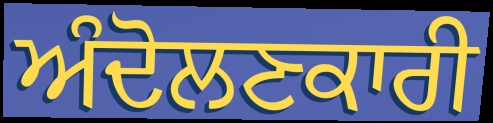
ਅੰਦੋਲਣਕਾਰੀ